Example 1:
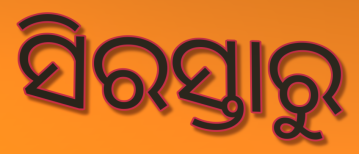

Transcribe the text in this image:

ସିରସ୍ତାରୁ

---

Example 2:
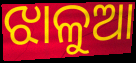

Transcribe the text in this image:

ଝାଳୁଆ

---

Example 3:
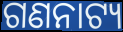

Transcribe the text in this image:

ଗଣନାଟ୍ୟ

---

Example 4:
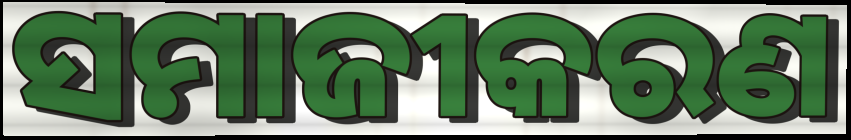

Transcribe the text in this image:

ସମାଜୀକରଣ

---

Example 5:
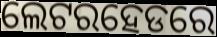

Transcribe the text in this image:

ଲେଟରହେଡରେ